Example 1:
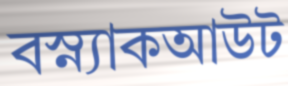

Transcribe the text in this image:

বস্ন্যাকআউট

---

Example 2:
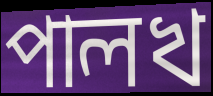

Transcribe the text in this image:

পালখ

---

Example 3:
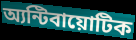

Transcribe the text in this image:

অ্যন্টিবায়োটিক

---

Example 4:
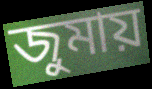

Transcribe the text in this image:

জুমায়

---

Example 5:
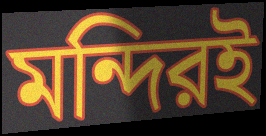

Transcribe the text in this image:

মন্দিরই